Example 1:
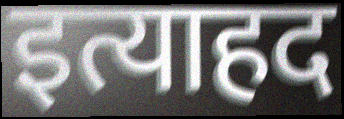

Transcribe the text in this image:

इत्याहद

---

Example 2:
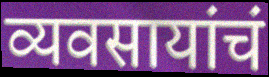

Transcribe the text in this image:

व्यवसायांचं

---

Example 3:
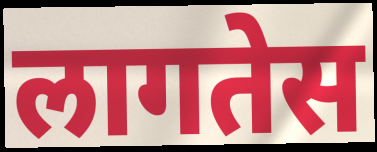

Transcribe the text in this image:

लागतेस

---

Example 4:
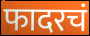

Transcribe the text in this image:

फादरचं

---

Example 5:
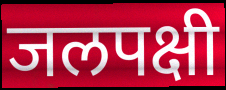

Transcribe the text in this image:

जलपक्षी